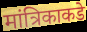
मांत्रिकाकडे